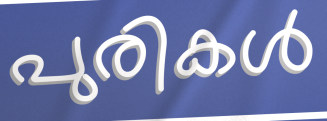
പുരികൾ